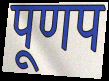
पूणप